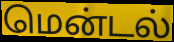
மென்டல்